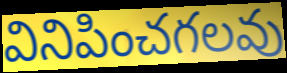
వినిపించగలవు